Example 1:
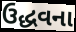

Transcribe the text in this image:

ઉદ્ધવના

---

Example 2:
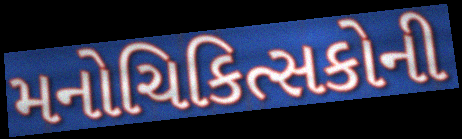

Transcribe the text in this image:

મનોચિકિત્સકોની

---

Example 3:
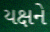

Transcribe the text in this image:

યક્ષને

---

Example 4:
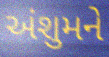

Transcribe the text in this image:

અંશુમને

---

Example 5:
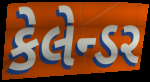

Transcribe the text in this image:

કેલેન્ડર